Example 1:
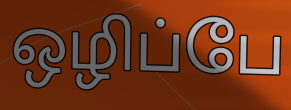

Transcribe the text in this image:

ஒழிப்பே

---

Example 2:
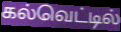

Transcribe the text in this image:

கல்வெட்டில்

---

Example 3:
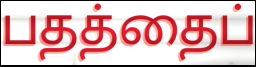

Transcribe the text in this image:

பதத்தைப்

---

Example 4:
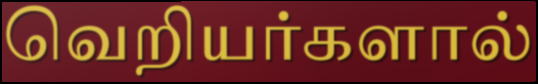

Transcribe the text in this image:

வெறியர்களால்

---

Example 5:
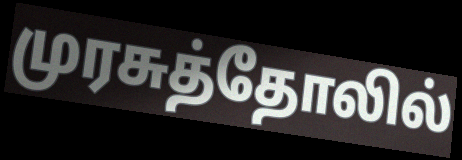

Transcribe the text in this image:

முரசுத்தோலில்